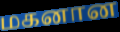
மகனான